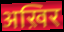
अख़िर